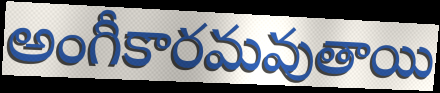
అంగీకారమవుతాయి